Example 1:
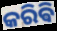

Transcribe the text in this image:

କରିଵି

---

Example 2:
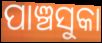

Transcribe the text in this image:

ପାଞ୍ଚସୁକା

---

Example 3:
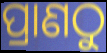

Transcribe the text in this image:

ପ୍ରାଣଠୁ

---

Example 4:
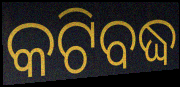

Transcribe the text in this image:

କଟିବଦ୍ଧ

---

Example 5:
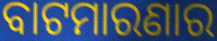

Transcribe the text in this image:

ବାଟମାରଣାର